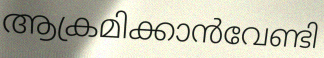
ആക്രമിക്കാൻവേണ്ടി